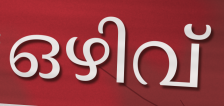
ഒഴിവ്